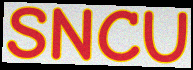
SNCU